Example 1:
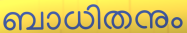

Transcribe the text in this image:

ബാധിതനും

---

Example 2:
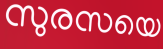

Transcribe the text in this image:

സുരസയെ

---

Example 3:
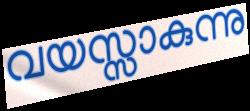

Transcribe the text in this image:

വയസ്സാകുന്നു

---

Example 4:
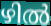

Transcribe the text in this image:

ഴിൽ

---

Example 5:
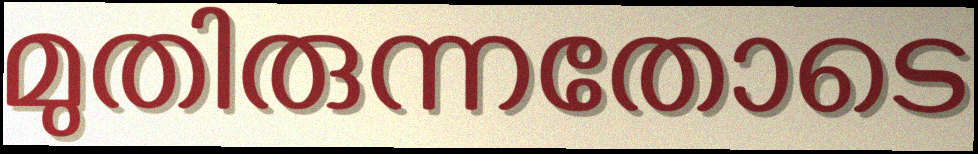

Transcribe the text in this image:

മുതിരുന്നതോടെ